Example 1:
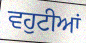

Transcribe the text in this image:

ਵਹੁਟੀਆਂ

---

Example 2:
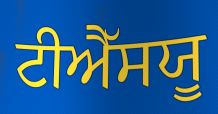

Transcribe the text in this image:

ਟੀਐੱਸਯੂ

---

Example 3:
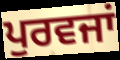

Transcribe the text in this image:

ਪੁਰਵਜਾਂ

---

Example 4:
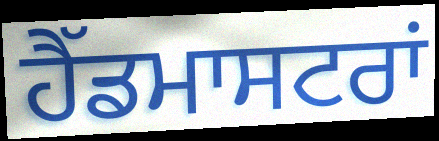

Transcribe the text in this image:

ਹੈੱਡਮਾਸਟਰਾਂ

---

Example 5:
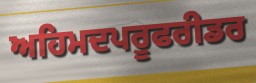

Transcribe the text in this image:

ਅਹਿਮਦਪਰੂਫਰੀਡਰ